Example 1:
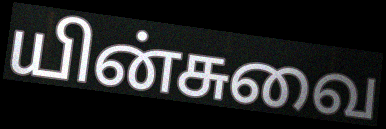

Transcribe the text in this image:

யின்சுவை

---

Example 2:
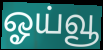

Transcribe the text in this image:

ஓய்வூ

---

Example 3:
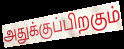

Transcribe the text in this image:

அதுக்குப்பிறகும்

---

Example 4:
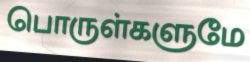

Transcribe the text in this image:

பொருள்களுமே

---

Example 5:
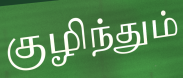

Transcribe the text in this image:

குழிந்தும்